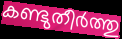
കണ്ടുതീർത്തു